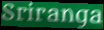
Sriranga